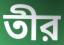
তীর